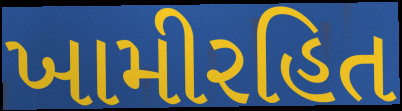
ખામીરહિત